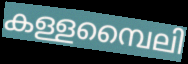
കള്ളമ്പൈലി